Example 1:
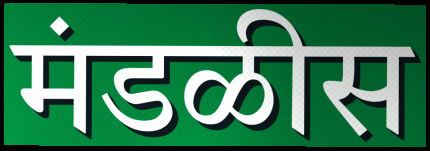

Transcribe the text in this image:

मंडळीस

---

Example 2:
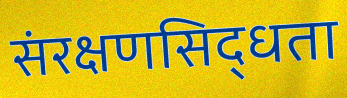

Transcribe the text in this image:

संरक्षणसिद्धता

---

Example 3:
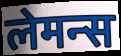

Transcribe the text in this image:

लेमन्स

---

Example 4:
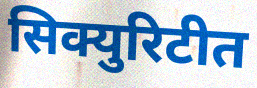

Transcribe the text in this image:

सिक्युरिटीत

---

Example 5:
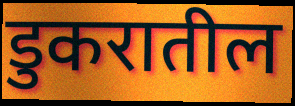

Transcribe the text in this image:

डुकरातील